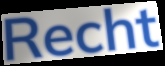
Recht